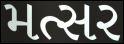
મત્સર